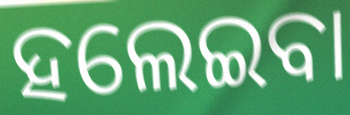
ହଲେଇବା